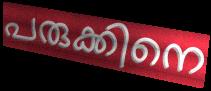
പരുക്കിനെ